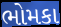
ભોમકા